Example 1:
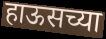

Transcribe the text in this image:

हाऊसच्या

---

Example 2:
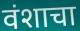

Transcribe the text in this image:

वंशाचा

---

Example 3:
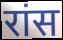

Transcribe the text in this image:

रांस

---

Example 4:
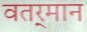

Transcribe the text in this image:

वतर्मान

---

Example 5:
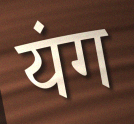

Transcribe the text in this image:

यंग